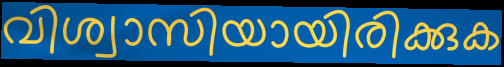
വിശ്വാസിയായിരിക്കുക